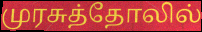
முரசுத்தோலில்